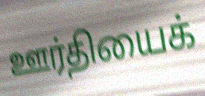
ஊர்தியைக்